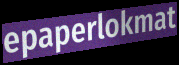
epaperlokmat